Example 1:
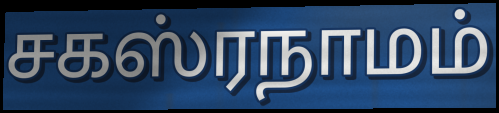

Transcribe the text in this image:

சகஸ்ரநாமம்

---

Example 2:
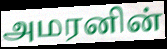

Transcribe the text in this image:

அமரனின்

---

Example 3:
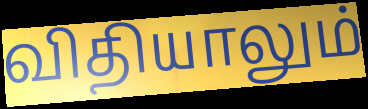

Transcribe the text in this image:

விதியாலும்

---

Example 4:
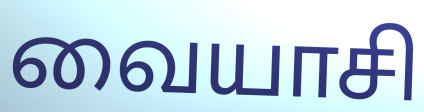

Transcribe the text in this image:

வையாசி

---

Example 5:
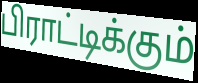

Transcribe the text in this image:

பிராட்டிக்கும்